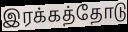
இரக்கத்தோடு